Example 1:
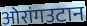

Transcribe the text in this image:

ओरांगउटान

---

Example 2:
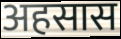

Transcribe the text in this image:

अहसास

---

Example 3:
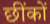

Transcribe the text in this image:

छींकों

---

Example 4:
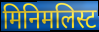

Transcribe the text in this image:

मिनिमलिस्ट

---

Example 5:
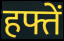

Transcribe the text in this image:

हफ्तें